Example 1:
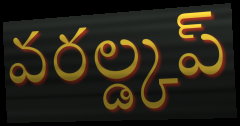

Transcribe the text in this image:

వరల్డ్కప్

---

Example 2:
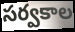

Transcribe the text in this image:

సర్వకాల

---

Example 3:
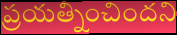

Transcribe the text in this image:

ప్రయత్నించిందని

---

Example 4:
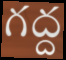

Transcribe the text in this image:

గద్ద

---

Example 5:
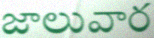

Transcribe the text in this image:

జాలువార